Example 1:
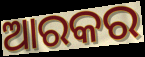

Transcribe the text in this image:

ଆରକର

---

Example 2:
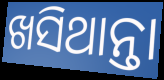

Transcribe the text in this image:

ଖସିଥାନ୍ତା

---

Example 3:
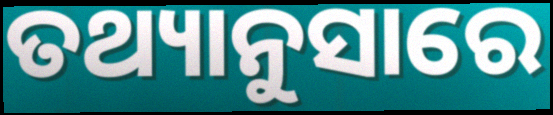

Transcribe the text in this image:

ତଥ୍ୟାନୁସାରେ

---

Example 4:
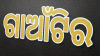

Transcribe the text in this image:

ଗାଆଁଟିର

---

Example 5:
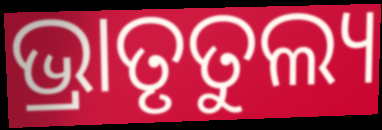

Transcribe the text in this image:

ଭ୍ରାତୃତୁଲ୍ୟ